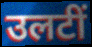
उलटीं